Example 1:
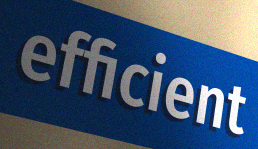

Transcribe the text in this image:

efficient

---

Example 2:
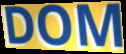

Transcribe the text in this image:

DOM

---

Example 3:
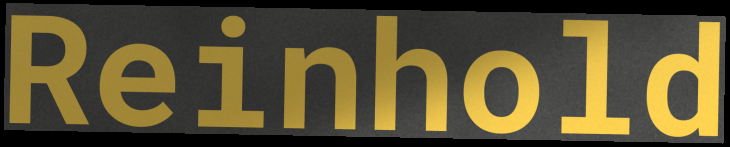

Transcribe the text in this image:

Reinhold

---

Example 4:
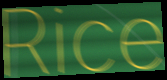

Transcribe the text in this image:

Rice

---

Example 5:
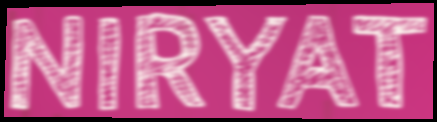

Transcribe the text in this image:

NIRYAT